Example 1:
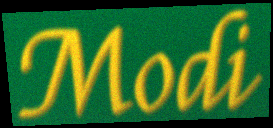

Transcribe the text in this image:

Modi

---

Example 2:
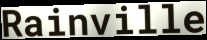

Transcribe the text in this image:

Rainville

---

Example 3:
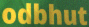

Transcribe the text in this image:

odbhut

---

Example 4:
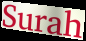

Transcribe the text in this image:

Surah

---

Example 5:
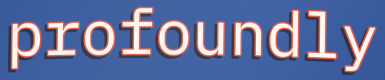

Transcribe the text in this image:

profoundly